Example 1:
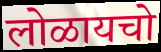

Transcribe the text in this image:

लोळायचो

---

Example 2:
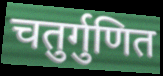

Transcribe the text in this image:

चतुर्गुणित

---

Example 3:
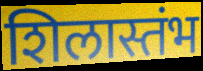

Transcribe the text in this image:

शिलास्तंभ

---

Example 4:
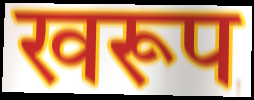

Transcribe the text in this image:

खरूप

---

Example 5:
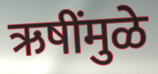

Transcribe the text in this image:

ऋषींमुळे